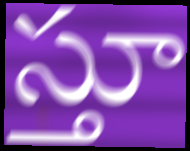
స్తూ